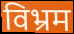
विभ्रम